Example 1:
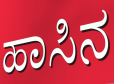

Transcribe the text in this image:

ಹಾಸಿನ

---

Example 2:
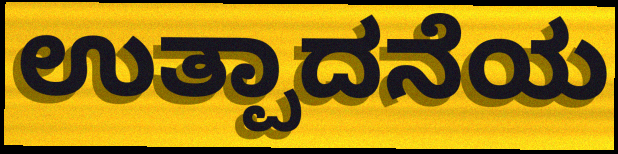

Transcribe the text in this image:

ಉತ್ಪಾದನೆಯ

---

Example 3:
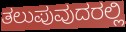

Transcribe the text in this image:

ತಲುಪುವುದರಲ್ಲಿ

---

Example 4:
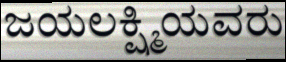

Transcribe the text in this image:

ಜಯಲಕ್ಷ್ಮಿಯವರು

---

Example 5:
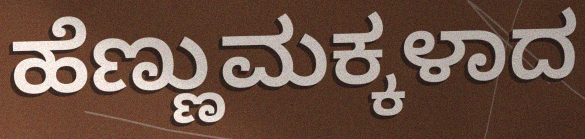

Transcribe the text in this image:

ಹೆಣ್ಣುಮಕ್ಕಳಾದ